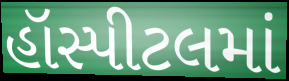
હૉસ્પીટલમાં